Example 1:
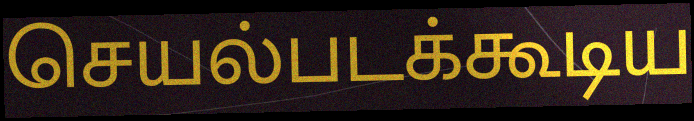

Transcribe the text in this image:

செயல்படக்கூடிய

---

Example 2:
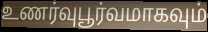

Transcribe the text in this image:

உணர்வுபூர்வமாகவும்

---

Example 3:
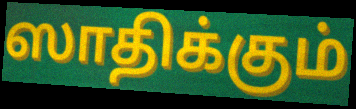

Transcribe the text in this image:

ஸாதிக்கும்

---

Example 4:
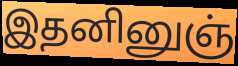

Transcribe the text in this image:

இதனினுஞ்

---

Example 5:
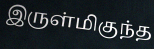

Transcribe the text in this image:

இருள்மிகுந்த